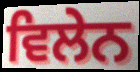
ਵਿਲੇਨ